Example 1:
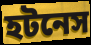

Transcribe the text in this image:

হটনেস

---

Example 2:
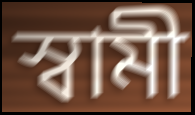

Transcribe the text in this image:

স্বামী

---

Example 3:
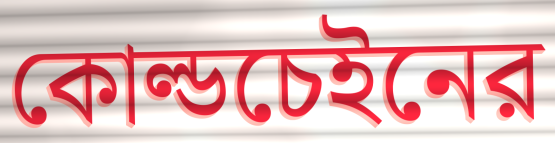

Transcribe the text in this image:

কোল্ডচেইনের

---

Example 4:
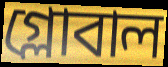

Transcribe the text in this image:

গ্লোবাল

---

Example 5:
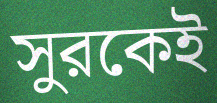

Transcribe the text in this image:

সুরকেই